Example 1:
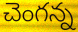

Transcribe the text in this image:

చెంగన్న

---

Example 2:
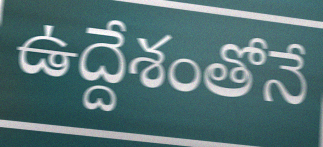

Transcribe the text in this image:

ఉద్దేశంతోనే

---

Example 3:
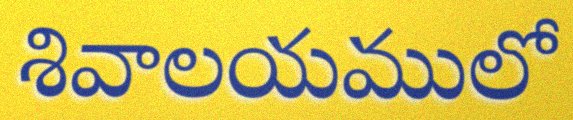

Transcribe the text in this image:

శివాలయములో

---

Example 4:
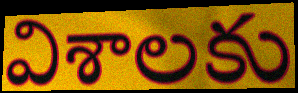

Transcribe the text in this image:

విశాలకు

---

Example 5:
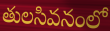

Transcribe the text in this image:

తులసివనంలో